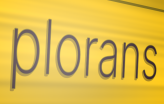
plorans